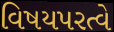
વિષયપરત્વે